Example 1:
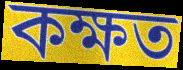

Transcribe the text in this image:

কক্ষত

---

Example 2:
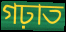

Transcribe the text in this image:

গঢ়াত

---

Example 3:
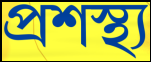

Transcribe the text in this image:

প্ৰশস্থ্য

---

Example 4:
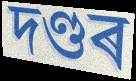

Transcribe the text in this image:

দণ্ডৰ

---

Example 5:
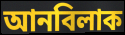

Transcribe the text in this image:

আনবিলাক